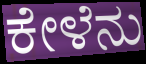
ಕೇಳೆನು